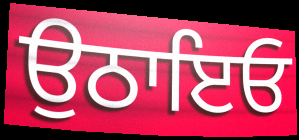
ਉਠਾਇਓ